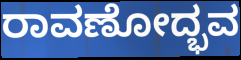
ರಾವಣೋದ್ಭವ